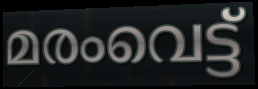
മരംവെട്ട്